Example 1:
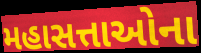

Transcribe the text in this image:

મહાસત્તાઓના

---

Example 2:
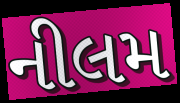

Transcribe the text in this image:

નીલમ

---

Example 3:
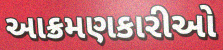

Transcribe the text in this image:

આક્રમણકારીઓ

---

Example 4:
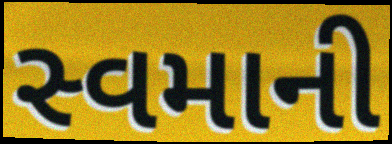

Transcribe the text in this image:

સ્વમાની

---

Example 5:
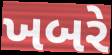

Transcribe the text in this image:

ખબરે